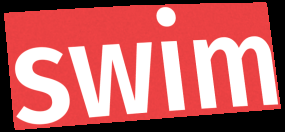
swim